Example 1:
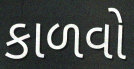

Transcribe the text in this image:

કાળવો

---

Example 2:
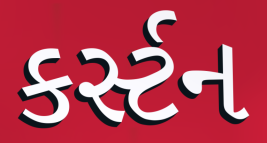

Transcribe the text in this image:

કર્સ્ટન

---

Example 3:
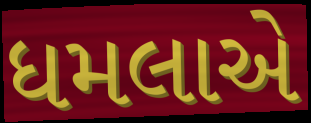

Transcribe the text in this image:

ધમલાએ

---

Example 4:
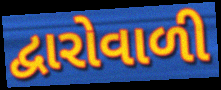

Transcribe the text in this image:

દ્વારોવાળી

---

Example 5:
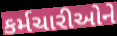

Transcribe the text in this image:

કર્મચારીઓને